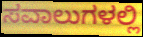
ಸವಾಲುಗಳಲ್ಲಿ